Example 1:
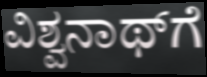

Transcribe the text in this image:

ವಿಶ್ವನಾಥ್‌ಗೆ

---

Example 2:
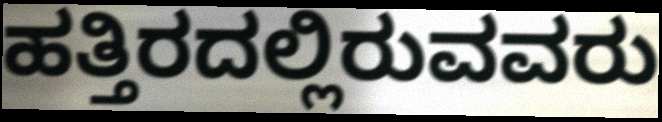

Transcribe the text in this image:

ಹತ್ತಿರದಲ್ಲಿರುವವರು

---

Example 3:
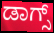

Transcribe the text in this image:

ಡಾಗ್ಸ್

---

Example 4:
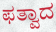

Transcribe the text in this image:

ಫತ್ವಾದ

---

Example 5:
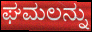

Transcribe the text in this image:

ಘಮಲನ್ನು